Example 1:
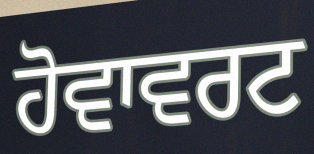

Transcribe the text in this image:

ਹੋਵਾਵਰਟ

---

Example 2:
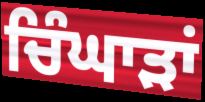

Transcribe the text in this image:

ਚਿੰਘਾੜਾਂ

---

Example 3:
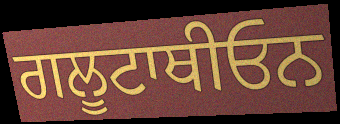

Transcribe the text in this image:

ਗਲੂਟਾਥੀਓਨ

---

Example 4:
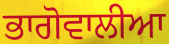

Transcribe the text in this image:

ਭਾਗੋਵਾਲੀਆ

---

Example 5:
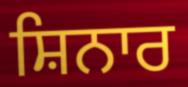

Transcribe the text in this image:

ਸ਼ਿਨਾਰ